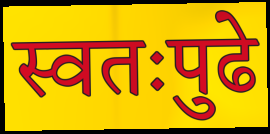
स्वतःपुढे